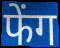
फेंग